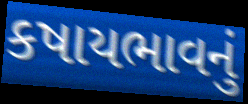
કષાયભાવનું